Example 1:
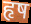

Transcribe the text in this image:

हृष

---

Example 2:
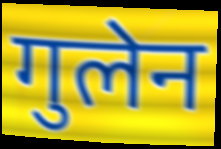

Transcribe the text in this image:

गुलेन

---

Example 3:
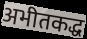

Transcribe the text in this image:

अभीतकद्ध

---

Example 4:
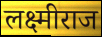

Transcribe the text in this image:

लक्ष्मीराज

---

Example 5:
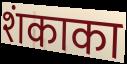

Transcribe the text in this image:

शंकाका